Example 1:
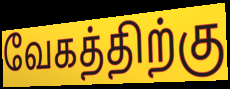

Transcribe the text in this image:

வேகத்திற்கு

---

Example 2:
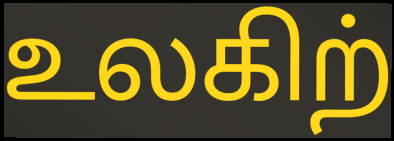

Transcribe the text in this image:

உலகிற்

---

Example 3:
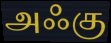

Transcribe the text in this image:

அஃகு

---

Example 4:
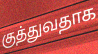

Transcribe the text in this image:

குத்துவதாக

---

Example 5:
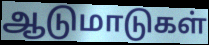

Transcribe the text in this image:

ஆடுமாடுகள்